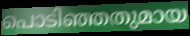
പൊടിഞ്ഞതുമായ